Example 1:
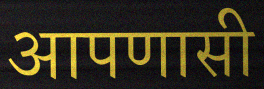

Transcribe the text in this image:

आपणासी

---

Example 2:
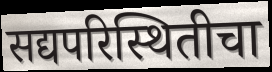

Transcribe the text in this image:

सद्यपरिस्थितीचा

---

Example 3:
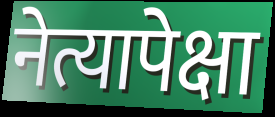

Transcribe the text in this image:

नेत्यापेक्षा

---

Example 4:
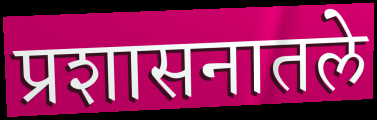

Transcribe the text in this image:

प्रशासनातले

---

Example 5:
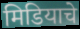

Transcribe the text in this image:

मिडियाचे